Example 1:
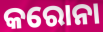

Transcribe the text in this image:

କରୋନା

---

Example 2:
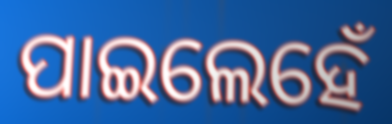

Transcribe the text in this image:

ପାଇଲେହେଁ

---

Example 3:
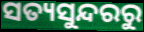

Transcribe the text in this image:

ସତ୍ୟସୁନ୍ଦରରୁ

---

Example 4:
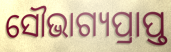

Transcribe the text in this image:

ସୌଭାଗ୍ୟପ୍ରାପ୍ତ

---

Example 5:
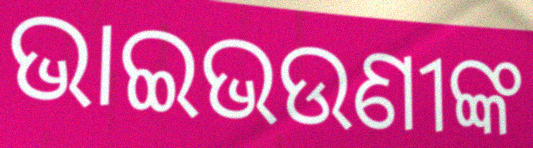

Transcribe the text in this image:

ଭାଇଭଉଣୀଙ୍କ